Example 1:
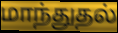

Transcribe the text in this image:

மாந்துதல்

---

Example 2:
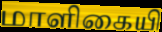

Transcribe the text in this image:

மாளிகையி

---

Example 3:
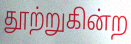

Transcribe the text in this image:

தூற்றுகின்ற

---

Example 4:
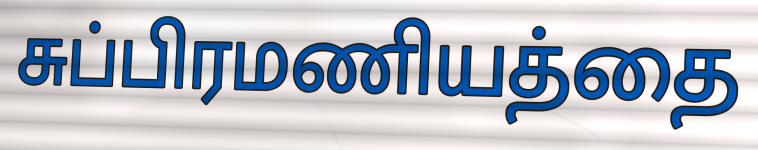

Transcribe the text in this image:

சுப்பிரமணியத்தை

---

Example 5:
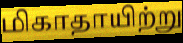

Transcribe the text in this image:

மிகாதாயிற்று